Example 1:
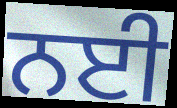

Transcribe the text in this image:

ਨਈ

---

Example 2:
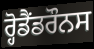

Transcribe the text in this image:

ਰ੍ਹੋਡੈਂਡਰੌਨਸ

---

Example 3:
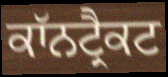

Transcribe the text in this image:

ਕਾੱਨਟ੍ਰੈਕਟ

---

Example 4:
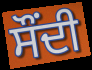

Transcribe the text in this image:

ਸੌਂਦੀ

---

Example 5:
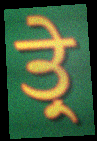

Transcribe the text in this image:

ਤ੍ਰੇ